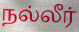
நல்லீர்